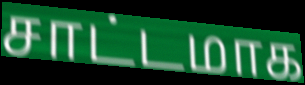
சாட்டமாக